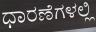
ಧಾರಣೆಗಳಲ್ಲಿ